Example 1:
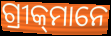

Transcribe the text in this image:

ଗ୍ରୀକ୍‌ମାନେ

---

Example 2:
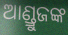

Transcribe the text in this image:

ଆଣ୍ଡ୍ରୁଜଙ୍କ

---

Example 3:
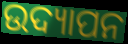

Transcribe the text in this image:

ଉଦ୍ୟାପନ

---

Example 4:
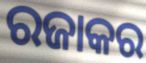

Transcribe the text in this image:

ରଜାକର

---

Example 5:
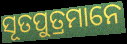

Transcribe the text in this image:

ସୂତପୁତ୍ରମାନେ